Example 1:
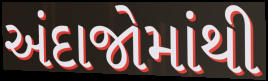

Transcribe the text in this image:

અંદાજોમાંથી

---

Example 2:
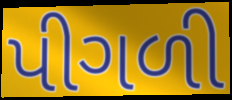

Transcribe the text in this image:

પીગળી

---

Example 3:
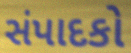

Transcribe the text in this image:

સંપાદકો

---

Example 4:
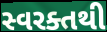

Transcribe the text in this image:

સ્વરક્તથી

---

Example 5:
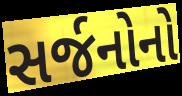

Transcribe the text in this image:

સર્જનોનો